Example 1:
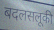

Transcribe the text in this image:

बदलसलूकी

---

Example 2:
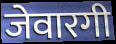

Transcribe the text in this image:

जेवारगी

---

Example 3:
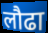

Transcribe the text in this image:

लौढा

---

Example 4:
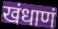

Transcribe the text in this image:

खंधाणं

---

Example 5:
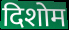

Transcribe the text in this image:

दिशोम